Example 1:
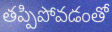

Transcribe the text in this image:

తప్పిపోవడంతో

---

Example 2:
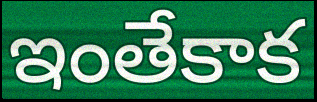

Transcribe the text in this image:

ఇంతేకాక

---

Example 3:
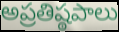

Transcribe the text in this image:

అప్రతిష్ఠపాలు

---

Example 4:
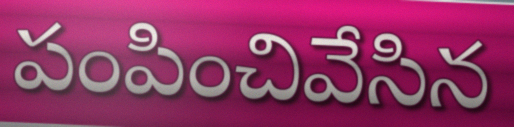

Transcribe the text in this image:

పంపించివేసిన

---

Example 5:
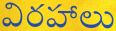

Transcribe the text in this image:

విరహాలు